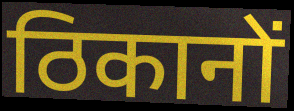
ठिकानों